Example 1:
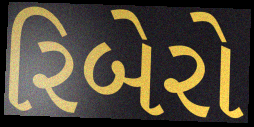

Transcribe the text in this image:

રિબેરો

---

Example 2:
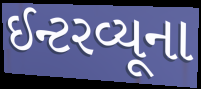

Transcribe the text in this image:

ઈન્ટરવ્યૂના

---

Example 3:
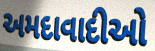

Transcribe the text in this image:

અમદાવાદીઓ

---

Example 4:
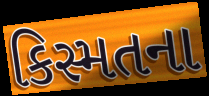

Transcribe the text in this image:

કિસ્મતના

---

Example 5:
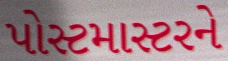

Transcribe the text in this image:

પોસ્ટમાસ્ટરને